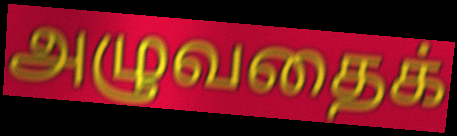
அழுவதைக்